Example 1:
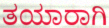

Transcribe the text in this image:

ತಯಾರಾಗಿ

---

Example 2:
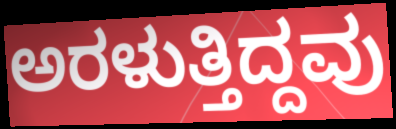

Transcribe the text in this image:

ಅರಳುತ್ತಿದ್ದವು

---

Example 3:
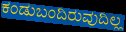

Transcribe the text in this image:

ಕಂಡುಬಂದಿರುವುದಿಲ್ಲ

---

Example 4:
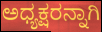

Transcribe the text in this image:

ಅಧ್ಯಕ್ಷರನ್ನಾಗಿ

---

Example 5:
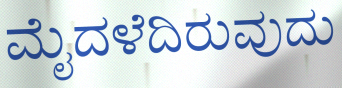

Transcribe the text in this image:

ಮೈದಳೆದಿರುವುದು